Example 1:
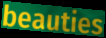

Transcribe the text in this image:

beauties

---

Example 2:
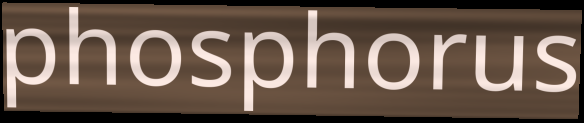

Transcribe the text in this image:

phosphorus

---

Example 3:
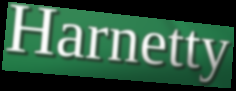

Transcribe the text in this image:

Harnetty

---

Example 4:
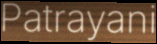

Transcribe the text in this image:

Patrayani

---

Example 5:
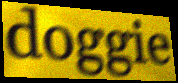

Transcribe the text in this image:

doggie